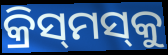
କ୍ରିସ୍‌ମସ୍‌କୁ